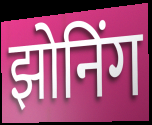
झोनिंग